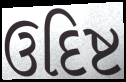
ઉદિષ્ટ